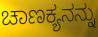
ಚಾಣಕ್ಯನನ್ನು